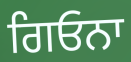
ਗਿਓਨਾ